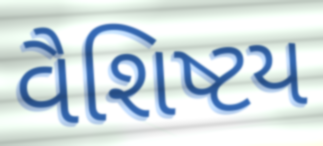
વૈશિષ્ટય